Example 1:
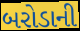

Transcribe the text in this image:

બરોડાની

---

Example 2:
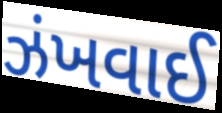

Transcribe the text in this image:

ઝંખવાઈ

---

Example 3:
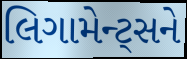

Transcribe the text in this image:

લિગામેન્ટ્સને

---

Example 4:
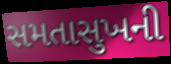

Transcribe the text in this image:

સમતાસુખની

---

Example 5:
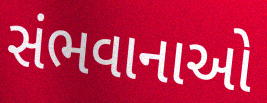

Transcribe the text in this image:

સંભવાનાઓ